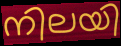
നിലയി